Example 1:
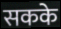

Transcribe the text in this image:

सकके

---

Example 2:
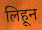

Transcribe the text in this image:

लिहून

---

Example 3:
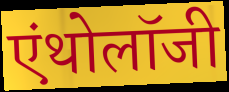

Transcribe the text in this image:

एंथोलॉजी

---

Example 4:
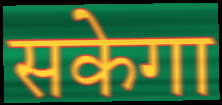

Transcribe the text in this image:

सकेगा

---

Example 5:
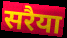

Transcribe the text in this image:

सरैया